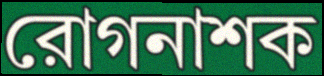
রোগনাশক